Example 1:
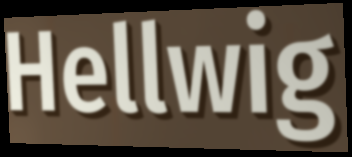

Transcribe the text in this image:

Hellwig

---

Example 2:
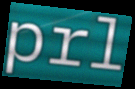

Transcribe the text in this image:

prl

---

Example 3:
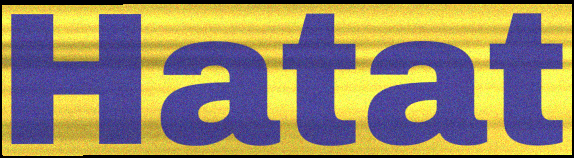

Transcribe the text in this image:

Hatat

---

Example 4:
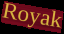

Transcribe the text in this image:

Royak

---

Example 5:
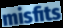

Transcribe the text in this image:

misfits